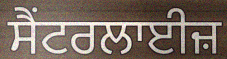
ਸੈਂਟਰਲਾਈਜ਼